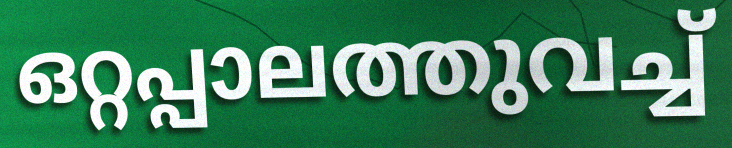
ഒറ്റപ്പാലത്തുവച്ച്